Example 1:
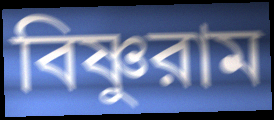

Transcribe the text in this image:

বিষ্ণুরাম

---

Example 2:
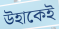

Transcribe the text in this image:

উহাকেই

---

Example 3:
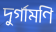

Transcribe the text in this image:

দুর্গামণি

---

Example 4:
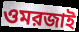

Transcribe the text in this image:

ওমরজাই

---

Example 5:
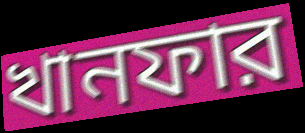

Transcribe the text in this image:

খানফার